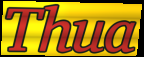
Thua